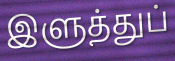
இளுத்துப்